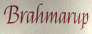
Brahmarup